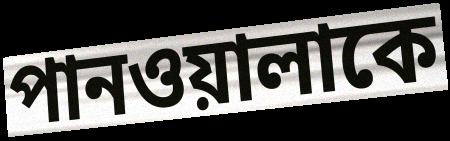
পানওয়ালাকে